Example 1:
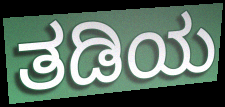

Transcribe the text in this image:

ತಡಿಯ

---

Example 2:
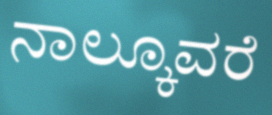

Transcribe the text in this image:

ನಾಲ್ಕೂವರೆ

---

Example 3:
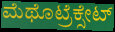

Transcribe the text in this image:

ಮೆಥೊಟ್ರೆಕ್ಸೇಟ್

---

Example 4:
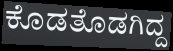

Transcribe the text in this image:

ಕೊಡತೊಡಗಿದ್ದ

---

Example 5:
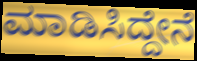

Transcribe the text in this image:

ಮಾಡಿಸಿದ್ದೇನೆ